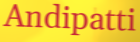
Andipatti